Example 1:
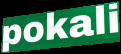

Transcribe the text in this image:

pokali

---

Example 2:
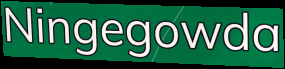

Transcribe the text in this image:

Ningegowda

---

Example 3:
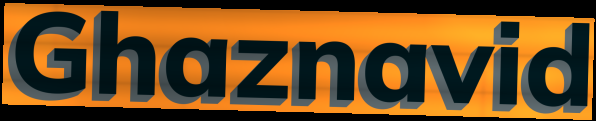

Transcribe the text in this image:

Ghaznavid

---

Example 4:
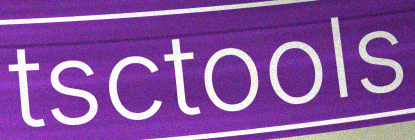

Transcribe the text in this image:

tsctools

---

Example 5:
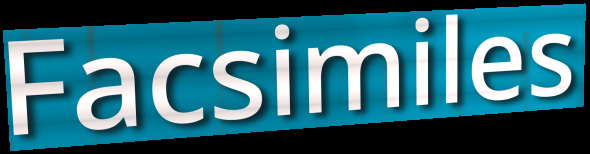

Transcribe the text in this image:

Facsimiles